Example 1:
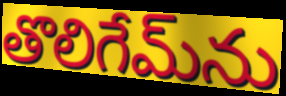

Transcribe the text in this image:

తొలిగేమ్‌ను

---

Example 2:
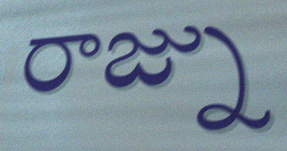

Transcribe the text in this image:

రాజ్ను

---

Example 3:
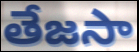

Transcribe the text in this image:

తేజసా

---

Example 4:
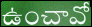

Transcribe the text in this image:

ఉంచావో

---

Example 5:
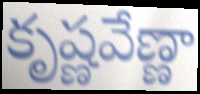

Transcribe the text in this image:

కృష్ణవేణ్ణా